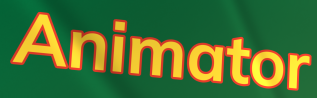
Animator